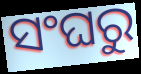
ସଂଘରୁ